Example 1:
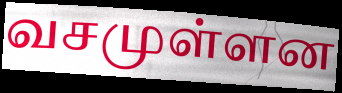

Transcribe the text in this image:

வசமுள்ளன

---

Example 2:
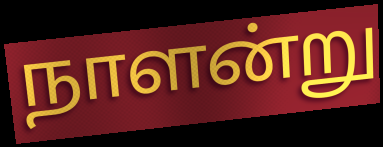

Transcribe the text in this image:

நாளன்று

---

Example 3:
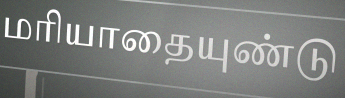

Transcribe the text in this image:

மரியாதையுண்டு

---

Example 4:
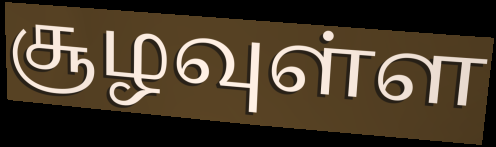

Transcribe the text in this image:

சூழவுள்ள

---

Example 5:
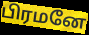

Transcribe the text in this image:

பிரமனே